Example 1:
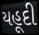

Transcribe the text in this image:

યહૂદી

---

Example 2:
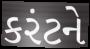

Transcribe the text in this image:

કરંટને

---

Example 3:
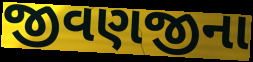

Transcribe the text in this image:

જીવણજીના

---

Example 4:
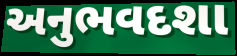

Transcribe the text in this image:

અનુભવદશા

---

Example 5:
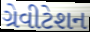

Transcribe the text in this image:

ગ્રેવીટેશન